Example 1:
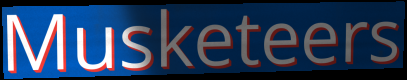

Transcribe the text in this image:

Musketeers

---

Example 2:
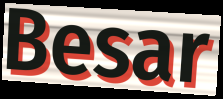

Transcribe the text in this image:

Besar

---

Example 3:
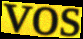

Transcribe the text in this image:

vos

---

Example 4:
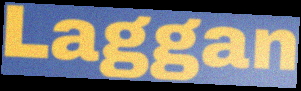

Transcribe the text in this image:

Laggan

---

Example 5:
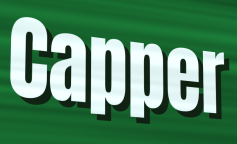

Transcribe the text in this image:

Capper